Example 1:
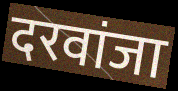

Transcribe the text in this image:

दरवांजा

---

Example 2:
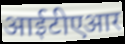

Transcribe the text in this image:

आईटीएआर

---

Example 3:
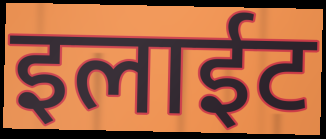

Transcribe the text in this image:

इलाईट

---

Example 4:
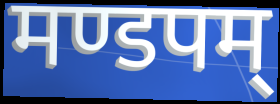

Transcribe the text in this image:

मण्डपम्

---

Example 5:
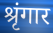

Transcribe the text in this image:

श्रृंगार